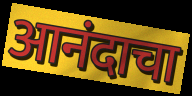
आनंदाचा